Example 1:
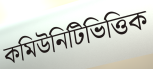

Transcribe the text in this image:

কমিউনিটিভিত্তিক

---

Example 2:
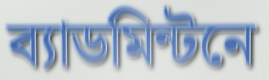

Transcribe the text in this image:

ব্যাডমিন্টনে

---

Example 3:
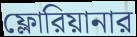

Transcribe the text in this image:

ফ্লোরিয়ানার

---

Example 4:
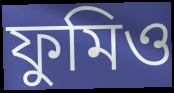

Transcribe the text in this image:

ফুমিও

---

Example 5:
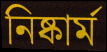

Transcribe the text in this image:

নিষ্কার্ম